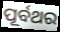
ପୂର୍ବଥର